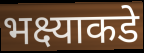
भक्ष्याकडे